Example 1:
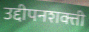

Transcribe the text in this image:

उद्दीपनशक्ती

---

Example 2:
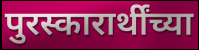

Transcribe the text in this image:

पुरस्कारार्थींच्या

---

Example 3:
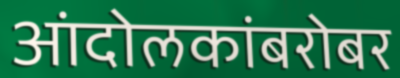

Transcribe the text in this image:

आंदोलकांबरोबर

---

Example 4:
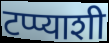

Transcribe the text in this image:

टप्प्याशी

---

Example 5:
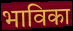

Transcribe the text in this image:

भाविका